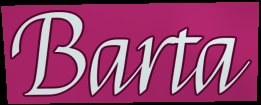
Barta